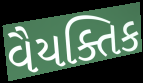
વૈયક્તિક